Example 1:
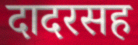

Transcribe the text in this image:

दादरसह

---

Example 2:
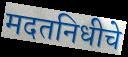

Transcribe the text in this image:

मदतनिधीचे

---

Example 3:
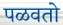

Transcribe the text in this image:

पळवतो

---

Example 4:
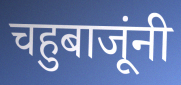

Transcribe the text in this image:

चहुबाजूंनी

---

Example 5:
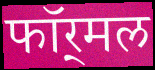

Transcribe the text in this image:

फॉर्मल